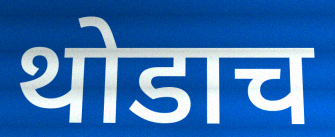
थोडाच